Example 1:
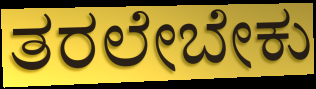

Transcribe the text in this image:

ತರಲೇಬೇಕು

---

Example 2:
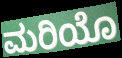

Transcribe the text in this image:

ಮರಿಯೊ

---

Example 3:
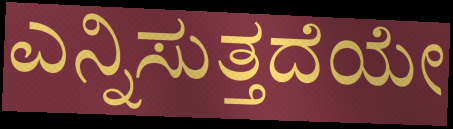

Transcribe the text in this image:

ಎನ್ನಿಸುತ್ತದೆಯೇ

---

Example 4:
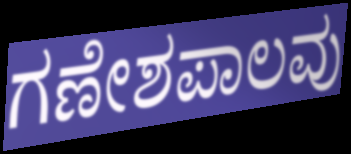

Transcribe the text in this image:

ಗಣೇಶಪಾಲವು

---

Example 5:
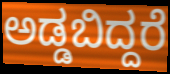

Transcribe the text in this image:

ಅಡ್ಡಬಿದ್ದರೆ